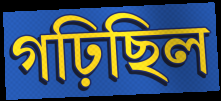
গঢ়িছিল